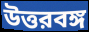
উত্তরবঙ্গ